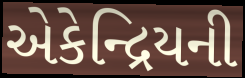
એકેન્દ્રિયની